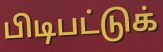
பிடிபட்டுக்